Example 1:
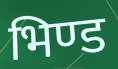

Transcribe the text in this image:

भिण्‍ड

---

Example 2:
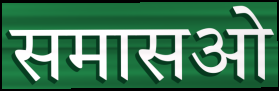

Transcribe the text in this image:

समासओ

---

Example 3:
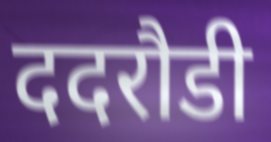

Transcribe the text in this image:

ददरौडी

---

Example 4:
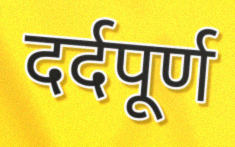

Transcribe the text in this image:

दर्दपूर्ण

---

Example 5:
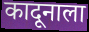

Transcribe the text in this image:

कादूनाला